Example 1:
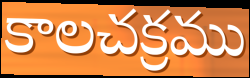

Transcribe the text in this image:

కాలచక్రము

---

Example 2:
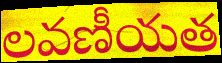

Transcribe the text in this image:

లవణీయత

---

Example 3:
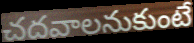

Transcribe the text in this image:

చదవాలనుకుంటే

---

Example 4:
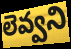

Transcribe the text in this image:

లెవ్వని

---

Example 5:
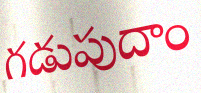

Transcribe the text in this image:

గడుపుదాం